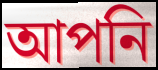
আপনি